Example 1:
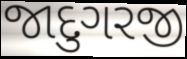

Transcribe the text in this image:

જાદુગરજી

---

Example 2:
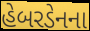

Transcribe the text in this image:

હેબરડેનના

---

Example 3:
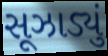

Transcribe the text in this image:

સૂઝાડ્યું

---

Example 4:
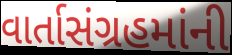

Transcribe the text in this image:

વાર્તાસંગ્રહમાંની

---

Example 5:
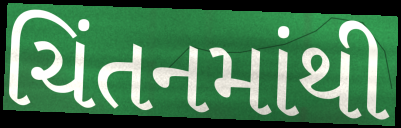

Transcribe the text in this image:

ચિંતનમાંથી